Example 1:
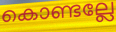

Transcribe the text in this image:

കൊണ്ടല്ലേ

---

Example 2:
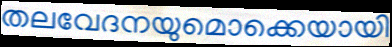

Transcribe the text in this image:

തലവേദനയുമൊക്കെയായി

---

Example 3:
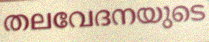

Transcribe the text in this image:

തലവേദനയുടെ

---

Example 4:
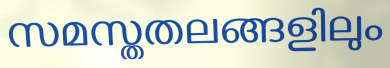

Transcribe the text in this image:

സമസ്തതലങ്ങളിലും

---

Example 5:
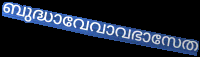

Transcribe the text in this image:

ബുദ്ധാവേവാവഭാസേത